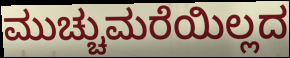
ಮುಚ್ಚುಮರೆಯಿಲ್ಲದ